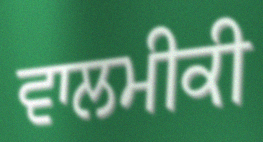
ਵਾਲਮੀਕੀ